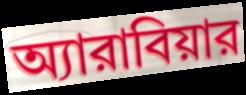
অ্যারাবিয়ার